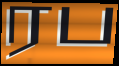
ரப